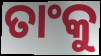
ତାଂକୁ